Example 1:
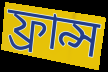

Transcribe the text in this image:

ফ্রান্স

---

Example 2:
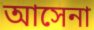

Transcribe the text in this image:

আসেনা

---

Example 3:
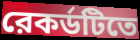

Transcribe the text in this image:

রেকর্ডটিতে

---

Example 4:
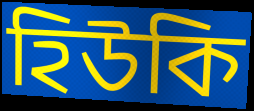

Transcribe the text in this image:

হিউকি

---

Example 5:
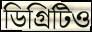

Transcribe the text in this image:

ডিগ্রিটিও